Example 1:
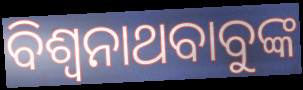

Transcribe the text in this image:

ବିଶ୍ୱନାଥବାବୁଙ୍କ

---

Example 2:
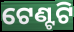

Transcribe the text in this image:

ଟେଣ୍ଟଟି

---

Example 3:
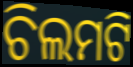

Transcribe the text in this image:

ଚିଲମଟି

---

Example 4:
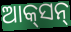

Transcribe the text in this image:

ଆକ୍‍ସନ୍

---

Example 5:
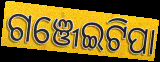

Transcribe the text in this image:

ଗଞ୍ଜେଇଟିପା